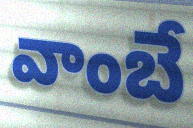
వాంబే